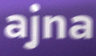
ajna